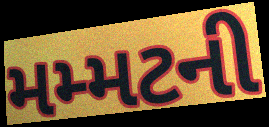
મમ્મટની